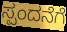
ಸ್ಪಂದನೆಗೆ